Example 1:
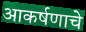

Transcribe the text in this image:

आकर्षणाचे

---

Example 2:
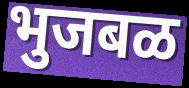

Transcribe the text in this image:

भुजबळ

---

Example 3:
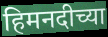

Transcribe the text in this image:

हिमनदीच्या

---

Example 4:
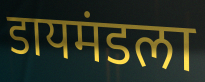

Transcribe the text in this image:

डायमंडला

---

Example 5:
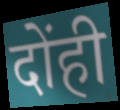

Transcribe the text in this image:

दोंही